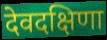
देवदक्षिणा